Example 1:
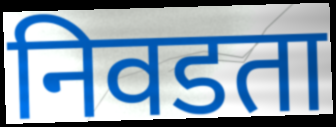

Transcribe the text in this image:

निवडता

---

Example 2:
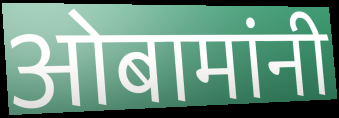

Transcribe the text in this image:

ओबामांनी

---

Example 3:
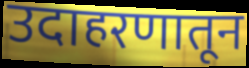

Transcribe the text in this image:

उदाहरणातून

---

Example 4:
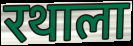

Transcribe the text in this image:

रथाला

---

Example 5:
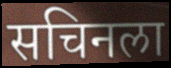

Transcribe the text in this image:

सचिनला